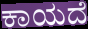
ಕಾಯದೆ